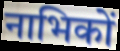
नाभिकों